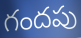
గందపు